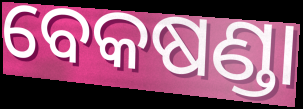
ବେକଷଣ୍ଡା